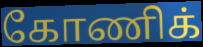
கோணிக்